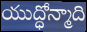
యుద్ధోన్మాది